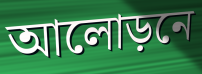
আলোড়নে